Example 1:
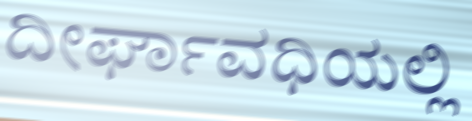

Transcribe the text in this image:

ದೀರ್ಘಾವಧಿಯಲ್ಲಿ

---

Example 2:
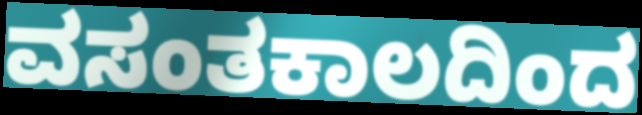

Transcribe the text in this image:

ವಸಂತಕಾಲದಿಂದ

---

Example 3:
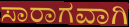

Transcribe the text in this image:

ಸಾರಾಗವಾಗಿ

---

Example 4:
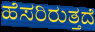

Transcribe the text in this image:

ಹೆಸರಿರುತ್ತದೆ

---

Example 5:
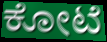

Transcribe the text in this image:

ಕೋಟೆ